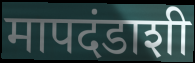
मापदंडाशी